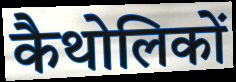
कैथोलिकों